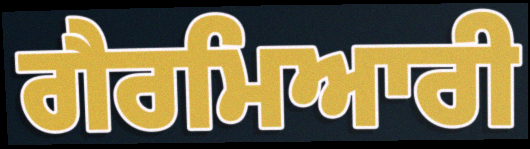
ਗੈਰਮਿਆਰੀ